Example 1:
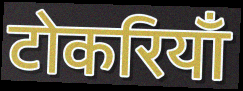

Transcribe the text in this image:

टोकरियाँ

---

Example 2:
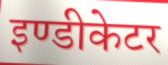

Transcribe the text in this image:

इण्डीकेटर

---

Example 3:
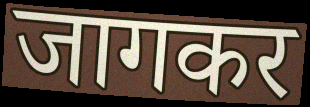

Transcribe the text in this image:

जागकर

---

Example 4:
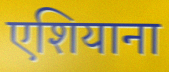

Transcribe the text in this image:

एशियाना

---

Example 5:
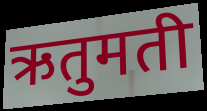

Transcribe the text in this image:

ऋतुमती